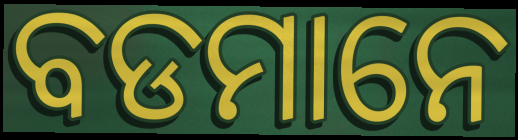
ବଡମାନେ